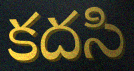
కదసి